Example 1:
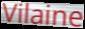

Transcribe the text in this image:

Vilaine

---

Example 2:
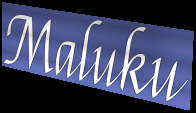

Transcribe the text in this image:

Maluku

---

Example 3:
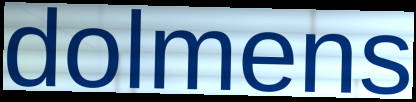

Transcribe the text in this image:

dolmens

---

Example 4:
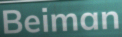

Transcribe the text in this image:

Beiman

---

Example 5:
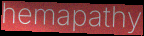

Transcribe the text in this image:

hemapathy